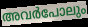
അവർപോലും